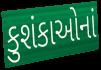
કુશંકાઓનાં